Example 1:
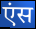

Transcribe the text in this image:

एंस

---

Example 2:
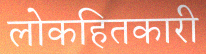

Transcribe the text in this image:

लोकहितकारी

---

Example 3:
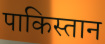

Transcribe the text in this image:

पाकिस्तान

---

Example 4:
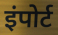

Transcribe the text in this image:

इंपोर्ट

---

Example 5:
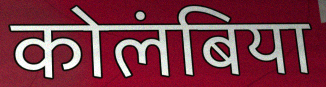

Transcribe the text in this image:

कोलंबिया